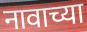
नावाच्या